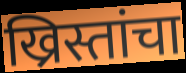
ख्रिस्तांचा